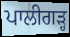
ਪਾਲੀਗੜ੍ਹ